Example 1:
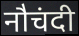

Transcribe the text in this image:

नौचंदी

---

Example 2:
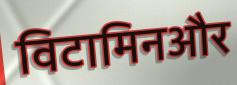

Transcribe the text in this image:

विटामिनऔर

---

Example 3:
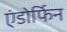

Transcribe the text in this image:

एंडोर्फिन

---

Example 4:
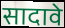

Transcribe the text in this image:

सादावे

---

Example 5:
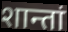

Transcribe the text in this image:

शान्तां